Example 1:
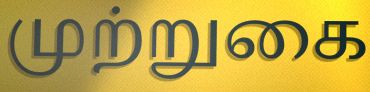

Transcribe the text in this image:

முற்றுகை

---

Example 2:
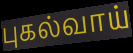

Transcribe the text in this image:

புகல்வாய்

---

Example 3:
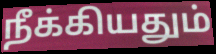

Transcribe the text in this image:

நீக்கியதும்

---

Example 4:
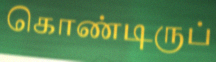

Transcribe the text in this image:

கொண்டிருப்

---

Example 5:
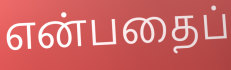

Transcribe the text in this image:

என்பதைப்